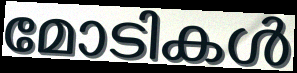
മോടികൾ